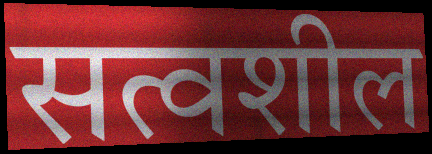
सत्वशील